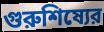
গুরুশিষ্যের